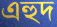
এহুদ